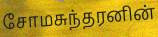
சோமசுந்தரனின்